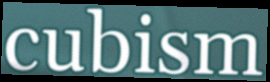
cubism